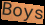
Boys